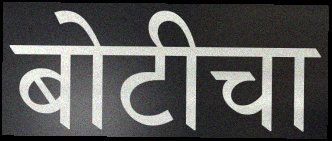
बोटीचा